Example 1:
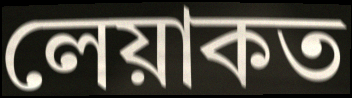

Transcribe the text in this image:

লেয়াকত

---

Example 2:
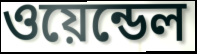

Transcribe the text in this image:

ওয়েন্ডেল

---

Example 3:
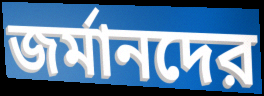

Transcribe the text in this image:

জর্মানদের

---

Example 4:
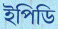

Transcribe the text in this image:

ইপিডি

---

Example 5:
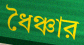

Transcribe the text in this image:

ধৈঞ্চার